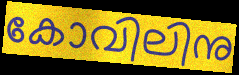
കോവിലിനു